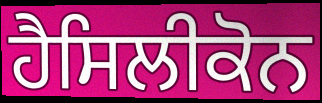
ਹੈਸਿਲੀਕੋਨ